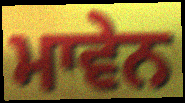
ਮਾਵੇਨ